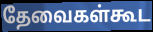
தேவைகள்கூட